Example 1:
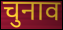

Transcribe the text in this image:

चुनाव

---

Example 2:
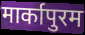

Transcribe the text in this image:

मार्कापुरम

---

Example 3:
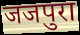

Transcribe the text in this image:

जजपुरा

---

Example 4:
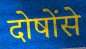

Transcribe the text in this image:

दोषोंसे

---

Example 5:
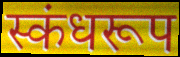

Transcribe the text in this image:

स्कंधरूप